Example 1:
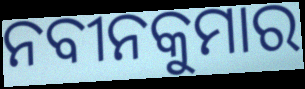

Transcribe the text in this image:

ନବୀନକୁମାର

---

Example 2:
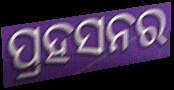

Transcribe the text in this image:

ପ୍ରହସନର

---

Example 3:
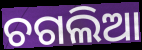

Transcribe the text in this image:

ଚଗଲିଆ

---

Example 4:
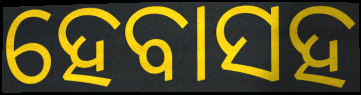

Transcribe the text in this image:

ହେବାସହ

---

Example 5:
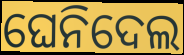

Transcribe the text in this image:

ଘେନିଦେଲ